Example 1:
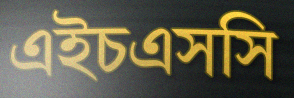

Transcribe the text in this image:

এইচএসসি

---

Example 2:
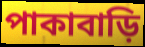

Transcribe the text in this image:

পাকাবাড়ি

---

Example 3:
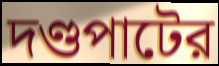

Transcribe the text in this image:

দণ্ডপাটের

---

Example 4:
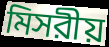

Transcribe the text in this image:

মিসরীয়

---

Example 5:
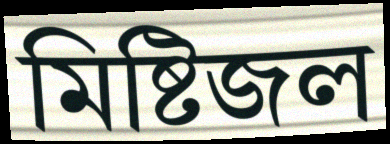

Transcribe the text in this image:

মিষ্টিজল